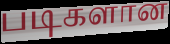
படிகளான